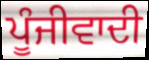
ਪੂੰਜੀਵਾਦੀ